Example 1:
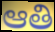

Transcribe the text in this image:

ఆతి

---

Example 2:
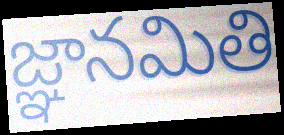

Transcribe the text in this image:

జ్ఞానమితి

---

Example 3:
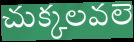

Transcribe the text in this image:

చుక్కలవలె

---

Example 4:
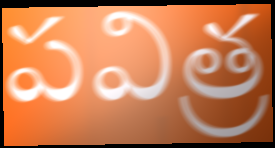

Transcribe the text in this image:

పవిత్ర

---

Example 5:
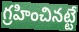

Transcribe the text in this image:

గ్రహించినట్టే